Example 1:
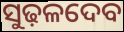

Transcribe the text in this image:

ସୁଢ଼ଳଦେବ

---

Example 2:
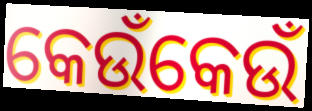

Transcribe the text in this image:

କେଉଁକେଉଁ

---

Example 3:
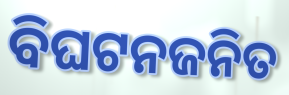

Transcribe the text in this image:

ବିଘଟନଜନିତ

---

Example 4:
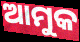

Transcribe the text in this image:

ଆମୁକ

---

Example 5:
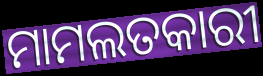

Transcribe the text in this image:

ମାମଲତକାରୀ